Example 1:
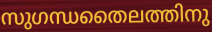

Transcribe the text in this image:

സുഗന്ധതൈലത്തിനു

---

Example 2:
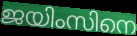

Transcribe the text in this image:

ജയിംസിനെ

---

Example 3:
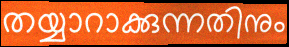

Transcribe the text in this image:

തയ്യാറാക്കുന്നതിനും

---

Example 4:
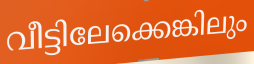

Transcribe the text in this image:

വീട്ടിലേക്കെങ്കിലും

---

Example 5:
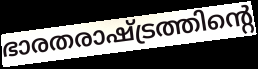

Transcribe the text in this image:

ഭാരതരാഷ്ട്രത്തിന്റെ